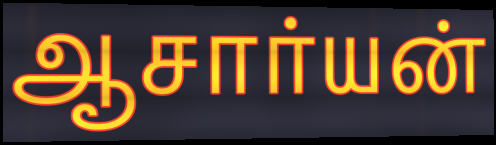
ஆசார்யன்